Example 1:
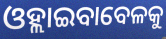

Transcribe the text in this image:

ଓହ୍ଲାଇବାବେଳକୁ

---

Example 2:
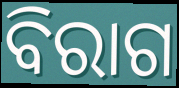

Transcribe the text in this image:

ବିରାଗ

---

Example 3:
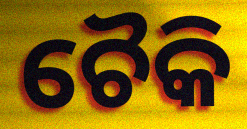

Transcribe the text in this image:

ଚୈକି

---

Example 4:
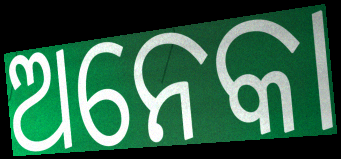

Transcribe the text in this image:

ଅନେକା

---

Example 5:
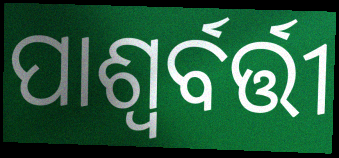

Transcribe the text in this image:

ପାଶ୍ୱର୍ବର୍ତ୍ତୀ